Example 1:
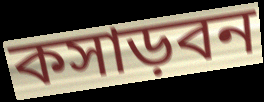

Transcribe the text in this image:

কসাড়বন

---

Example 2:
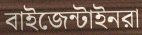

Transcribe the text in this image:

বাইজেন্টাইনরা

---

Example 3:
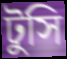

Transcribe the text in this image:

টুসি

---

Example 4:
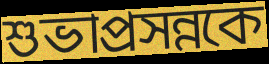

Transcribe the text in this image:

শুভাপ্রসন্নকে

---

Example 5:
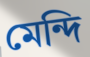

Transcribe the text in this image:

মেন্দি